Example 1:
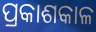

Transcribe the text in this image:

ପ୍ରକାଶକାଳ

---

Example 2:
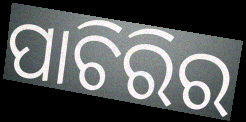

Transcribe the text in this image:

ପାଚିରିର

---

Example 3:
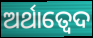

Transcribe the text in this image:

ଅର୍ଥାତ୍ବେଦ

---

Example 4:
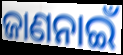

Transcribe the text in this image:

ଜାଣନାଇଁ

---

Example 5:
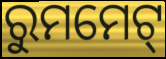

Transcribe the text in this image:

ରୁମମେଟ୍